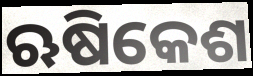
ଋଷିକେଶ